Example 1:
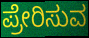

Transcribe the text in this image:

ಪ್ರೇರಿಸುವ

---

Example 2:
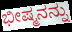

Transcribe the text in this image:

ಭೀಷ್ಮನನ್ನು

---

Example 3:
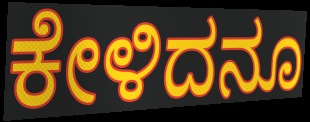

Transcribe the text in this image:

ಕೇಳಿದನೂ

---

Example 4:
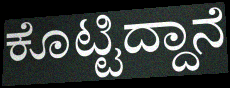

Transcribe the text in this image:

ಕೊಟ್ಟಿದ್ದಾನೆ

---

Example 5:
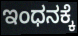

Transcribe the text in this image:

ಇಂಧನಕ್ಕೆ